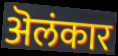
ऄलंकार